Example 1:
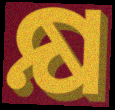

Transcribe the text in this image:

କ୍ଷ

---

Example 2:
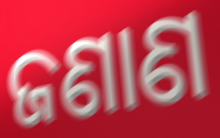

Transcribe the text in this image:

ଜଣାଣ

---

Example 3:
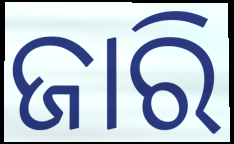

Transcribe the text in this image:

ଜାରି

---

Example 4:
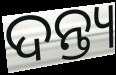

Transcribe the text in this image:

ଦନ୍ତ୍ୟ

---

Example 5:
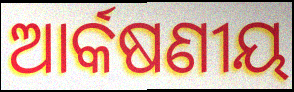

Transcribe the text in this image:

ଆର୍କଷଣୀୟ